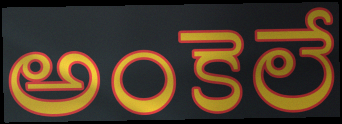
అంకెలే